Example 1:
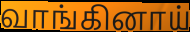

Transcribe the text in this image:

வாங்கினாய்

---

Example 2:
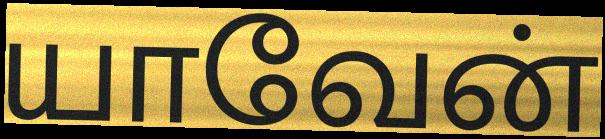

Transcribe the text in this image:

யாவேன்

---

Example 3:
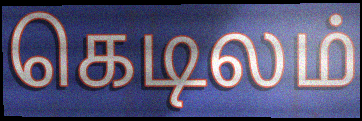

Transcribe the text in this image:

கெடிலம்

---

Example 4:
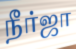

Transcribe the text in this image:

நீர்ஜா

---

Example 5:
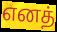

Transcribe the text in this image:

எனத்